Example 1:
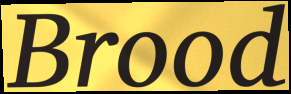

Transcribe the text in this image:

Brood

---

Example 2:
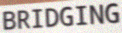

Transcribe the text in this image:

BRIDGING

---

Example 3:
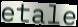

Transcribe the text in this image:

etale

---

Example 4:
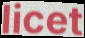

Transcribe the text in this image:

licet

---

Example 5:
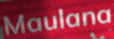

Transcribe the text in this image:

Maulana